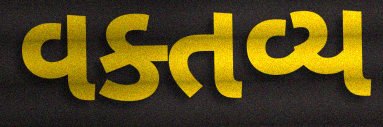
વક્તવ્ય